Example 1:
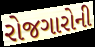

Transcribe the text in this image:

રોજગારોની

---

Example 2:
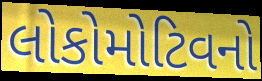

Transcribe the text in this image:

લોકોમોટિવનો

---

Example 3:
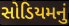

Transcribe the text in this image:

સોડિયમનું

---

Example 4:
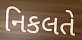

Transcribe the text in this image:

નિકલતે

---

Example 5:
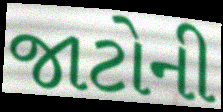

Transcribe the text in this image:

જાટોની